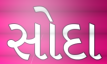
સોદા